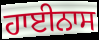
ਹਾਈਨਾਸ